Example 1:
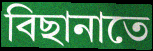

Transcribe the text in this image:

বিছানাতে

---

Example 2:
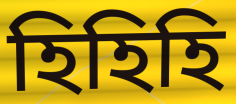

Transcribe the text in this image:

হিহিহি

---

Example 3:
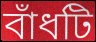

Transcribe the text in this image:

বাঁধটি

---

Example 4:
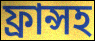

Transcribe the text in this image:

ফ্রান্সহ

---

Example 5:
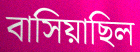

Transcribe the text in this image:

বাসিয়াছিল